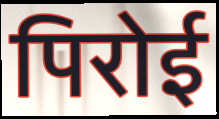
पिरोई